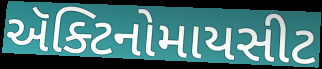
ઍક્ટિનોમાયસીટ